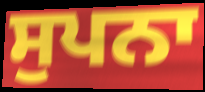
ਸੁਪਨਾ